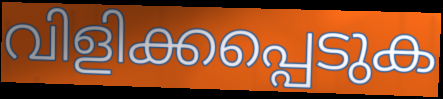
വിളിക്കപ്പെടുക